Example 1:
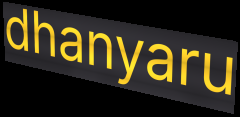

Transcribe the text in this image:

dhanyaru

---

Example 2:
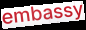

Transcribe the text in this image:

embassy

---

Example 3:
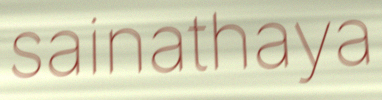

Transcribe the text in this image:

sainathaya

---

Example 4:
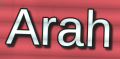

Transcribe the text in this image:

Arah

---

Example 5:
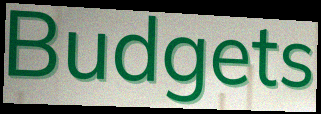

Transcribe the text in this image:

Budgets